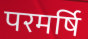
परमर्षि